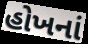
હોખનાં